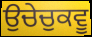
ਉਚੇਚੁਕਵੂ